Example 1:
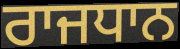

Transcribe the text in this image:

ਰਾਜਧਾਨ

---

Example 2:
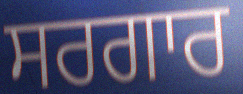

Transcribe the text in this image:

ਸਰਗਾਰ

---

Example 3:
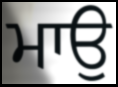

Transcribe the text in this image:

ਮਾਉ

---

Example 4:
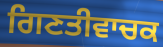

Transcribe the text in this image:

ਗਿਣਤੀਵਾਚਕ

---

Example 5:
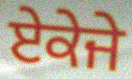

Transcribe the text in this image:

ਏਕੇਜੇ